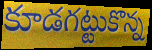
కూడగట్టుకొన్న